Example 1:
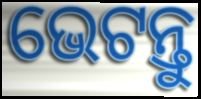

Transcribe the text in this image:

ଭେଟନ୍ତୁ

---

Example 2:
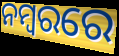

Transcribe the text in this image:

ନମ୍ବରରେ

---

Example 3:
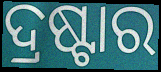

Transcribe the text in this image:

ଦ୍ରଷ୍ଟାର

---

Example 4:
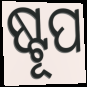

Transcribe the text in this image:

ଷ୍ଟୂପ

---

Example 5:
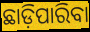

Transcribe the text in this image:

ଛାଡ଼ିପାରିବା